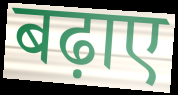
बढ़ाए